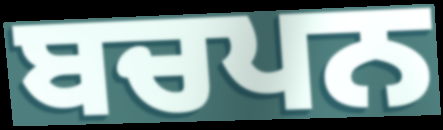
ਬਚਪਨ